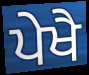
ਪੇਖੈ